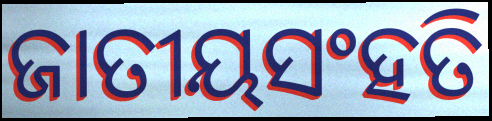
ଜାତୀୟସଂହତି